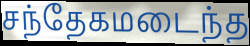
சந்தேகமடைந்த